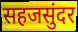
सहजसुंदर